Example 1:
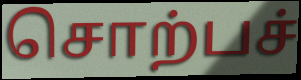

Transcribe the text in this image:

சொற்பச்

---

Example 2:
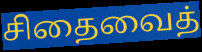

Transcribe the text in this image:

சிதைவைத்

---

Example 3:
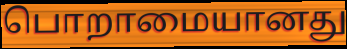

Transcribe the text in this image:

பொறாமையானது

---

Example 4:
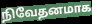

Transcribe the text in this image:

நிவேதனமாக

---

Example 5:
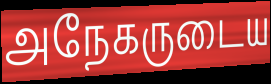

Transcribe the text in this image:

அநேகருடைய